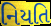
નિયતિ